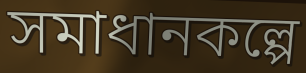
সমাধানকল্পে